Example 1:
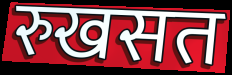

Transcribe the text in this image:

रुखसत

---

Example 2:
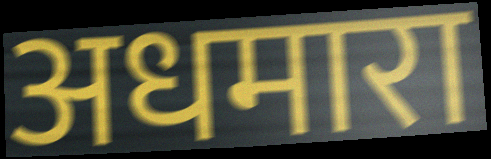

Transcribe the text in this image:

अधमारा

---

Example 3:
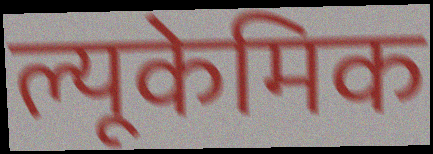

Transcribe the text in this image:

ल्यूकेमिक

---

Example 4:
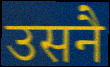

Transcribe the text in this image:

उसनै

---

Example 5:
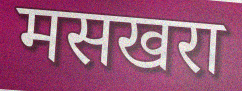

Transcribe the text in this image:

मसखरा